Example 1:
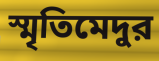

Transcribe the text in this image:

স্মৃতিমেদুর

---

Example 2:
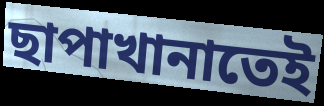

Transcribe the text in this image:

ছাপাখানাতেই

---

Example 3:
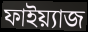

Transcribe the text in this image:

ফাইয়্যাজ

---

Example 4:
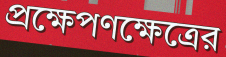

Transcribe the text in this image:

প্রক্ষেপণক্ষেত্রের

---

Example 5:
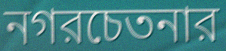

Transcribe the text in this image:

নগরচেতনার